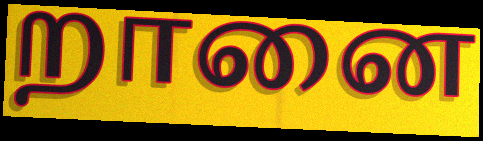
றானை